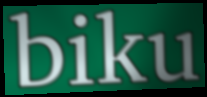
biku